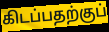
கிடப்பதற்குப்